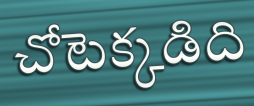
చోటెక్కడిది